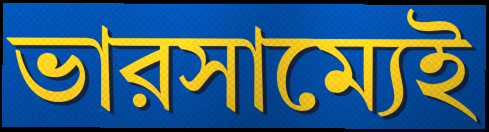
ভারসাম্যেই